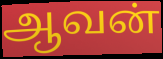
ஆவன்